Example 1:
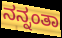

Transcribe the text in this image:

ನನ್ನಂತಾ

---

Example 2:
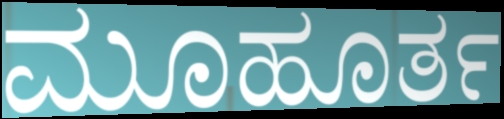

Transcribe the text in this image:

ಮೂಹೂರ್ತ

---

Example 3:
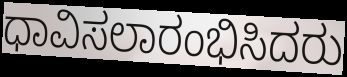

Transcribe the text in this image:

ಧಾವಿಸಲಾರಂಭಿಸಿದರು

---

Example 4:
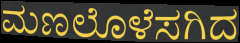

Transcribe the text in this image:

ಮಣಲೊಳೆಸಗಿದ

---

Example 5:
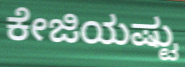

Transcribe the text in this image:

ಕೇಜಿಯಷ್ಟು